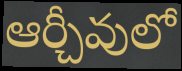
ఆర్చీవులో